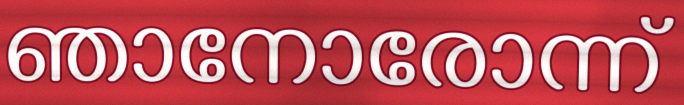
ഞാനോരോന്ന്